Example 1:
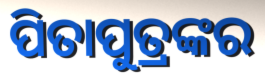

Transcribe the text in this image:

ପିତାପୁତ୍ରଙ୍କର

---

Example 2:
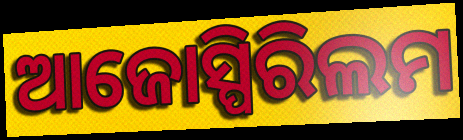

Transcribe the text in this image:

ଆଜୋସ୍ପିରିଲମ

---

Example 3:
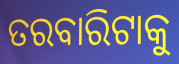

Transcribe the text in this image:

ତରବାରିଟାକୁ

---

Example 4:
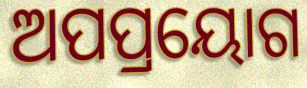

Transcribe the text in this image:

ଅପପ୍ରୟୋଗ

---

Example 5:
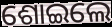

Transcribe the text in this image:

ଶୋଇଲେ